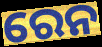
ରେନ